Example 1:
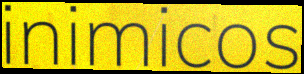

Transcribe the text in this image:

inimicos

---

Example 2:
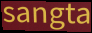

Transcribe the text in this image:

sangta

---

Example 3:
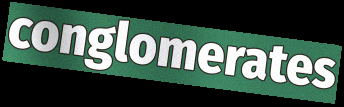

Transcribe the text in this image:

conglomerates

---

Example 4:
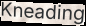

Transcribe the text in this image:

Kneading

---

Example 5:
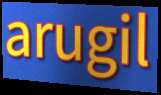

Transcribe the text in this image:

arugil